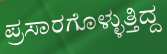
ಪ್ರಸಾರಗೊಳ್ಳುತ್ತಿದ್ದ